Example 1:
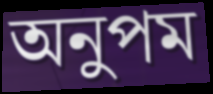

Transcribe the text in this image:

অনুপম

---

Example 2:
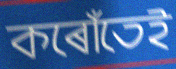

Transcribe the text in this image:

কৰোঁতেই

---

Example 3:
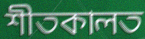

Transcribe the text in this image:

শীতকালত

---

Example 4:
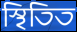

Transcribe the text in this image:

স্থিতিত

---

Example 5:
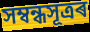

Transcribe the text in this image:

সম্বন্ধসূত্ৰৰ